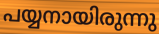
പയ്യനായിരുന്നു